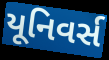
યૂનિવર્સ